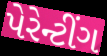
પેરેન્ટીંગ